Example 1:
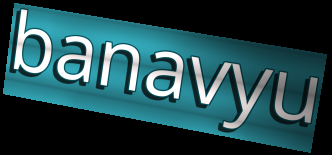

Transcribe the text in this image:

banavyu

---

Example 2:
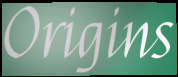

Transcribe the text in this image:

Origins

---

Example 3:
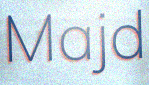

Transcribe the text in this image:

Majd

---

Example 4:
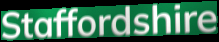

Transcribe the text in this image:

Staffordshire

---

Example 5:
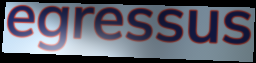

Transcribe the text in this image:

egressus